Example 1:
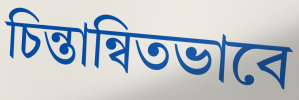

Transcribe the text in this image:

চিন্তান্বিতভাবে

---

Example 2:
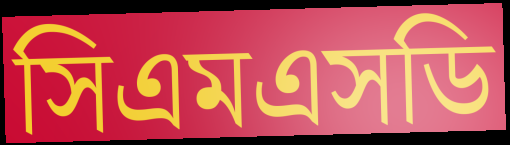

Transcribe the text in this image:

সিএমএসডি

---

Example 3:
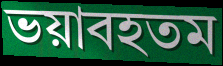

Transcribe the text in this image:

ভয়াবহতম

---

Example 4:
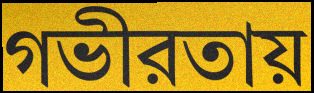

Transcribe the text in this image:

গভীরতায়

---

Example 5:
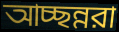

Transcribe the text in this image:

আচ্ছন্নরা